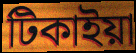
টিকাইয়া